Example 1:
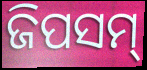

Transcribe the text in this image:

ଜିପସମ୍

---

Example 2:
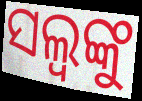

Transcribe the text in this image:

ସଲ୍ୱଙ୍କୁ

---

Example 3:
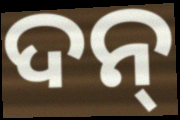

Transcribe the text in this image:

ଦନ୍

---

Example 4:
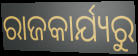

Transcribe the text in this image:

ରାଜକାର୍ଯ୍ୟରୁ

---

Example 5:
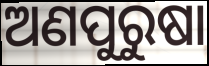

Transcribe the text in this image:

ଅଣପୁରୁଷା